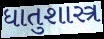
ધાતુશાસ્ત્ર